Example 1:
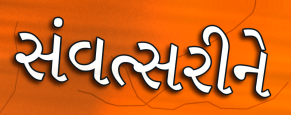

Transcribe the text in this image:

સંવત્સરીને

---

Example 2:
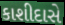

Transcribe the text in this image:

કાશીદાસે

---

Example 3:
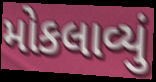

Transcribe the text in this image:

મોકલાવ્યું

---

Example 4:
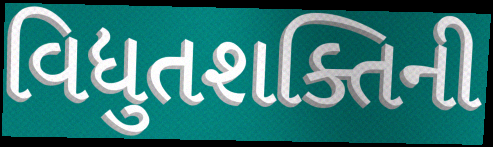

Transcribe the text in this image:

વિદ્યુતશક્તિની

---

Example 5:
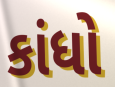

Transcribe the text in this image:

કાંધો